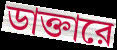
ডাক্তারে